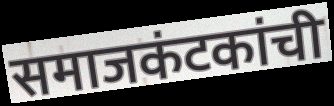
समाजकंटकांची